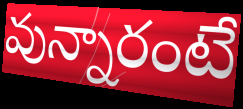
వున్నారంటే